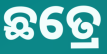
ଛତ୍ରେ